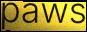
paws